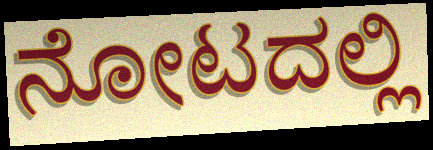
ನೋಟದಲ್ಲಿ